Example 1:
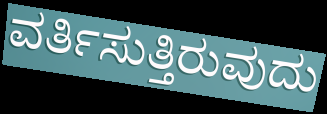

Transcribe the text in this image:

ವರ್ತಿಸುತ್ತಿರುವುದು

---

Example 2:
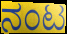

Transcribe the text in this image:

ನಂಟ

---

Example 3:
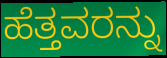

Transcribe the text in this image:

ಹೆತ್ತವರನ್ನು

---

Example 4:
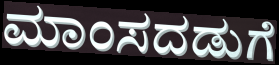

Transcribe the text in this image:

ಮಾಂಸದಡುಗೆ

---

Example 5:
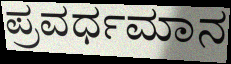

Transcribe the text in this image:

ಪ್ರವರ್ಧಮಾನ